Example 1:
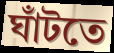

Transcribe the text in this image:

ঘাঁটতে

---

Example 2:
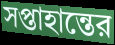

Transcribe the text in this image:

সপ্তাহান্তের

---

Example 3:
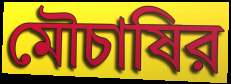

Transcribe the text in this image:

মৌচাষির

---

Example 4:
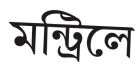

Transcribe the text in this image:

মন্ট্রিলে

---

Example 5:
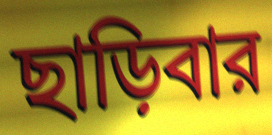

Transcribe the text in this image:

ছাড়িবার